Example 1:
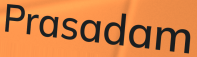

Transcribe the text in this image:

Prasadam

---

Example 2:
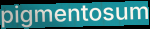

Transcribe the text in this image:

pigmentosum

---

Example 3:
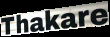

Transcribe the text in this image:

Thakare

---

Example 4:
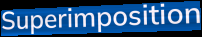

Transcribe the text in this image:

Superimposition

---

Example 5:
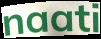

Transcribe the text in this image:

naati